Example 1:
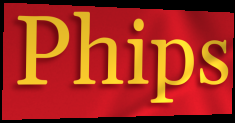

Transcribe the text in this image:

Phips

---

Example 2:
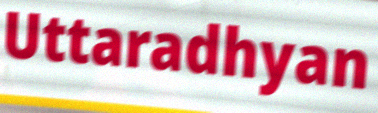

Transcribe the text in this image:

Uttaradhyan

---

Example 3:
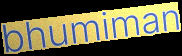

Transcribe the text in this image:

bhumiman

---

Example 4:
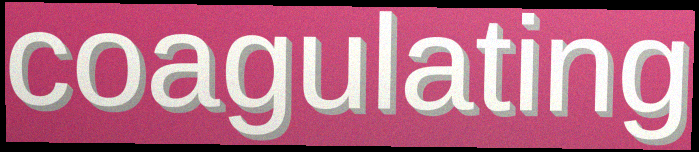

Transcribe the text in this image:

coagulating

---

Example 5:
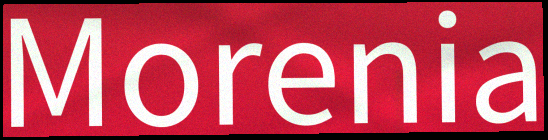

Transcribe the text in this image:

Morenia